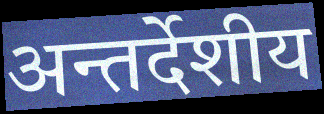
अन्तर्देशीय